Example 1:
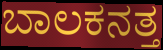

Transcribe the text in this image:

ಬಾಲಕನತ್ತ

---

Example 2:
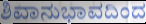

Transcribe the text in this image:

ಶಿವಾನುಭಾವದಿಂದ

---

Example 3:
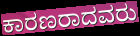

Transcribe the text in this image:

ಕಾರಣರಾದವರು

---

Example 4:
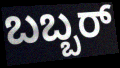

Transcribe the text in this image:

ಬಬ್ಬರ್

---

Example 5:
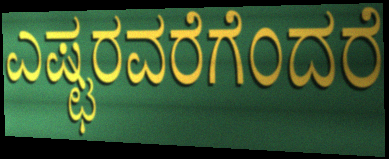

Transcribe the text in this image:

ಎಷ್ಟರವರೆಗೆಂದರೆ